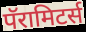
पॅरामिटर्स